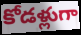
కోడళ్లుగా